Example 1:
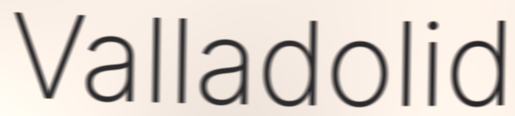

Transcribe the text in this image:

Valladolid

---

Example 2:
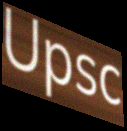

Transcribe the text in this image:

Upsc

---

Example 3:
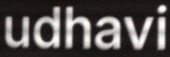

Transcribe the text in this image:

udhavi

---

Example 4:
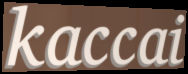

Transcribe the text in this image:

kaccai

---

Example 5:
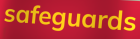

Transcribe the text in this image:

safeguards